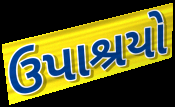
ઉપાશ્રયો